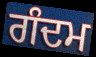
ਗੰਦਮ